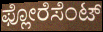
ಫ್ಲೋರೆಸೆಂಟ್